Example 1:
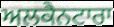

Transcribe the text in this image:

ਅਲਕੈਨਟਾਰਾ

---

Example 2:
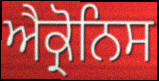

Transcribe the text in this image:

ਐਕ੍ਰੋਨਿਸ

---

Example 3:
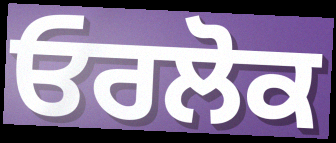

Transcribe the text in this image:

ਓਰਲੋਕ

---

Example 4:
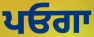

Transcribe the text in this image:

ਪਓਗਾ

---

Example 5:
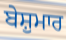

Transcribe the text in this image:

ਬੇਸ਼ੁਮਾਰ